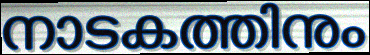
നാടകത്തിനും